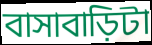
বাসাবাড়িটা